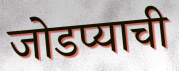
जोडप्याची